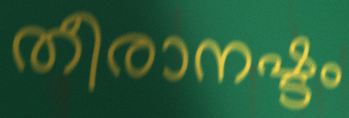
തീരാനഷ്ടം